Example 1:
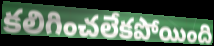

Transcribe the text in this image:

కలిగించలేకపోయింది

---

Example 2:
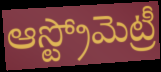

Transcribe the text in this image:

ఆస్ట్రోమెట్రీ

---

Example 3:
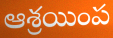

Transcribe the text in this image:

ఆశ్రయింప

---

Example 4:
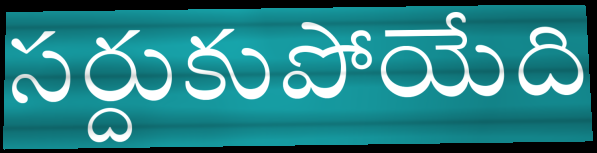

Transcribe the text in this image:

సర్దుకుపోయేది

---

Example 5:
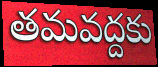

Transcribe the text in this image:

తమవద్దకు